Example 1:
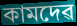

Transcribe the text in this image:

কামদেৱ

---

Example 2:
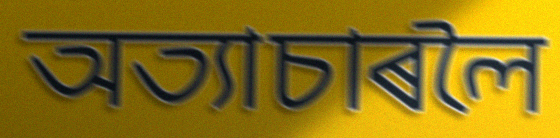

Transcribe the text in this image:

অত্যাচাৰলৈ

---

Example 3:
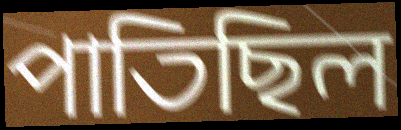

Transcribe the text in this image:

পাতিছিল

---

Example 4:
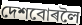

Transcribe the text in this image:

দেশবোৰলৈ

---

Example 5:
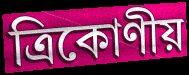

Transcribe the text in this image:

ত্ৰিকোণীয়